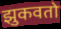
झुकवतो